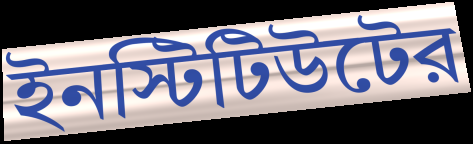
ইনস্টিটিউটের